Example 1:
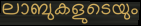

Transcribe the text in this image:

ലാബുകളുടെയും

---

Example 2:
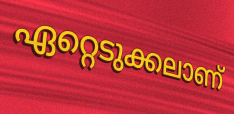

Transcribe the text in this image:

ഏറ്റെടുക്കലാണ്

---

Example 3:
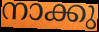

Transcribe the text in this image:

നാക്കു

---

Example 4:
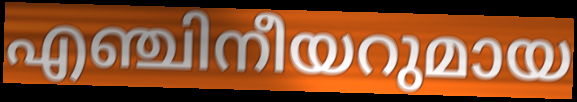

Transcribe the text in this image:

എഞ്ചിനീയറുമായ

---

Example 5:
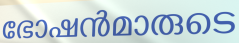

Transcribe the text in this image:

ഭോഷൻമാരുടെ